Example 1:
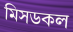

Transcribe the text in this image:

মিসডকল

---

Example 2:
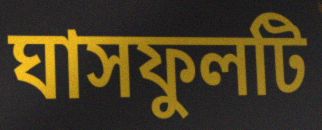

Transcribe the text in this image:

ঘাসফুলটি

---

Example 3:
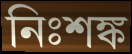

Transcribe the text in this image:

নিঃশঙ্ক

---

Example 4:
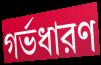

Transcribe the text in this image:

গর্ভধারণ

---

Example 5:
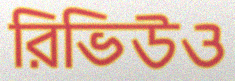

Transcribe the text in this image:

রিভিউও